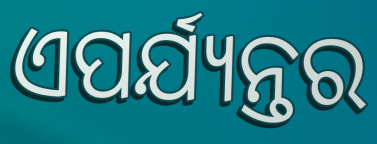
ଏପର୍ଯ୍ୟନ୍ତର